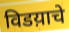
विडय़ाचे